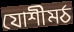
যোশীমঠ